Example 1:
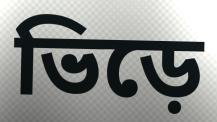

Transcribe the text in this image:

ভিড়ে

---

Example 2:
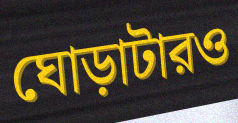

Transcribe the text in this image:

ঘোড়াটারও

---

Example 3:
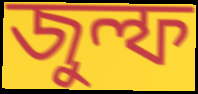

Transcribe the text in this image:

জুল্ফ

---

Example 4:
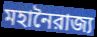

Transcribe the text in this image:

মহানৈরাজ্য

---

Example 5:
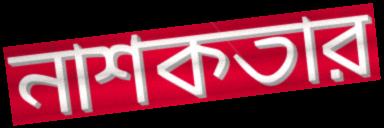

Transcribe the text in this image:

নাশকতার